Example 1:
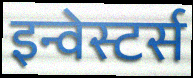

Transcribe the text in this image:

इन्वेस्टर्स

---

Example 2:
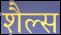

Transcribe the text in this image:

शैल्स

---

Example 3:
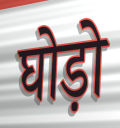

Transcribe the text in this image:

घोड़ो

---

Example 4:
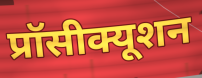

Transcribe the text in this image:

प्रॉसीक्यूशन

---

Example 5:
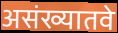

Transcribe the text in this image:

असंख्यातवे